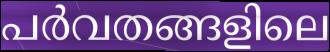
പർവതങ്ങളിലെ